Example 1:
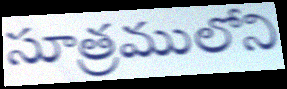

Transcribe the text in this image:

సూత్రములోని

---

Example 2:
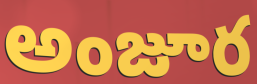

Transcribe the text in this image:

అంజూర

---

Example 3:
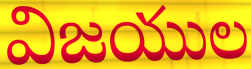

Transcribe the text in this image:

విజయుల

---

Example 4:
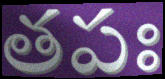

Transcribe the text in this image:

తపః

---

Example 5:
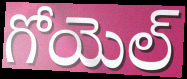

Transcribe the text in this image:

గోయెల్